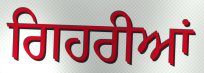
ਗਿਹਰੀਆਂ